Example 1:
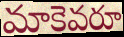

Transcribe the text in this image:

మాకెవరూ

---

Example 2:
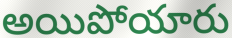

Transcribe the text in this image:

అయిపోయారు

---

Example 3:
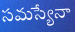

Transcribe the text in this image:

సమస్యేనా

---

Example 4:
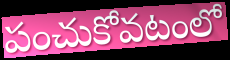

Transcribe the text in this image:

పంచుకోవటంలో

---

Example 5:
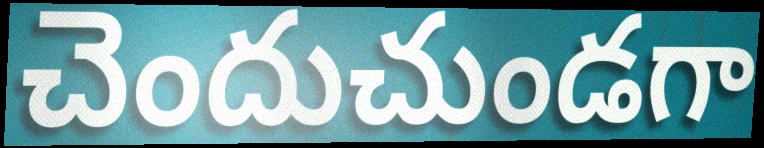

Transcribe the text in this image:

చెందుచుండగా